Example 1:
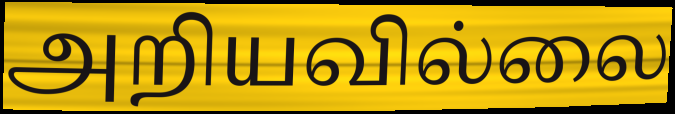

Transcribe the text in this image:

அறியவில்லை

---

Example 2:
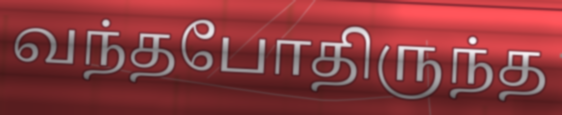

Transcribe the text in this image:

வந்தபோதிருந்த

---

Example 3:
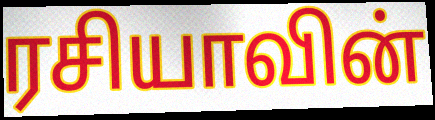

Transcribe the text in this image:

ரசியாவின்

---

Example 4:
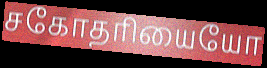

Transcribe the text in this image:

சகோதரியையோ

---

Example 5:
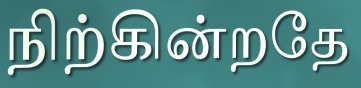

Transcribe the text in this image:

நிற்கின்றதே